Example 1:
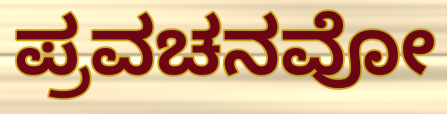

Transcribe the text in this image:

ಪ್ರವಚನವೋ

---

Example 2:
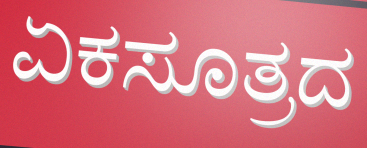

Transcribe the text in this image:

ಏಕಸೂತ್ರದ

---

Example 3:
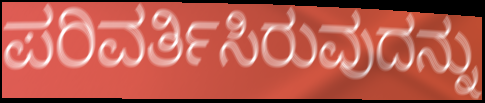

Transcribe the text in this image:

ಪರಿವರ್ತಿಸಿರುವುದನ್ನು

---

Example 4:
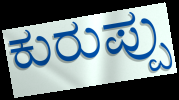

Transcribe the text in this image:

ಕುರುಪ್ಪು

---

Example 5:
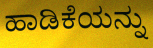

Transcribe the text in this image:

ಹಾಡಿಕೆಯನ್ನು